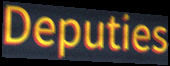
Deputies